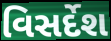
વિસર્દેશ